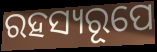
ରହସ୍ୟରୂପେ